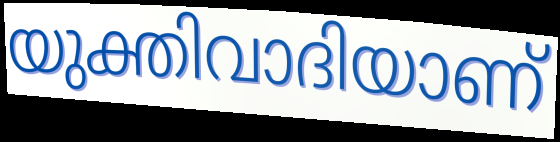
യുക്തിവാദിയാണ്